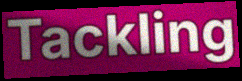
Tackling